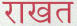
राखत